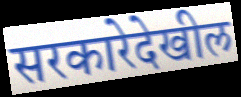
सरकारेदेखील